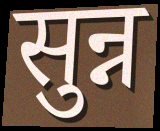
सुन्न